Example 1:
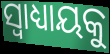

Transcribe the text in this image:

ସ୍ୱାଧ୍ୟାୟକୁ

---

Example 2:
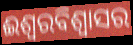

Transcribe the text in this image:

ଈଶ୍ୱରବିଶ୍ୱାସର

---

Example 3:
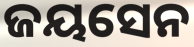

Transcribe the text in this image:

ଜୟସେନ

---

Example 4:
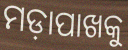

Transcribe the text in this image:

ମଡ଼ାପାଖକୁ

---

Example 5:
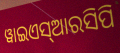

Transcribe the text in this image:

ୱାଇଏସ୍ଆରସିପି